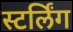
स्टर्लिंग